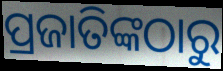
ପ୍ରଜାତିଙ୍କଠାରୁ